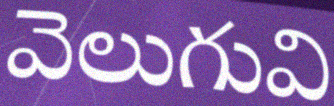
వెలుగువి